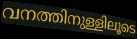
വനത്തിനുള്ളിലൂടെ